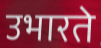
उभारते